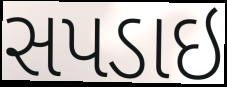
સપડાઇ